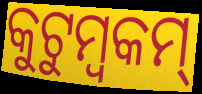
କୁଟୁମ୍ବକମ୍